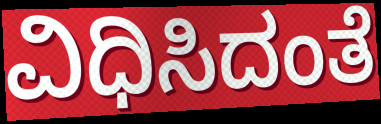
ವಿಧಿಸಿದಂತೆ